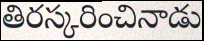
తిరస్కరించినాడు